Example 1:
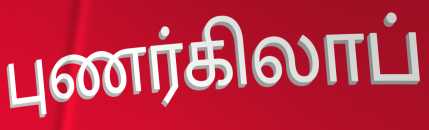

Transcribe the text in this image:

புணர்கிலாப்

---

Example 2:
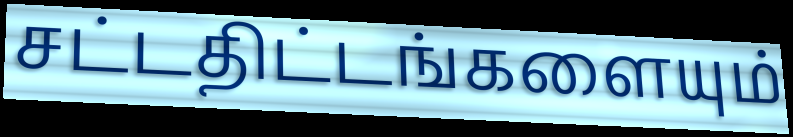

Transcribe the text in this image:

சட்டதிட்டங்களையும்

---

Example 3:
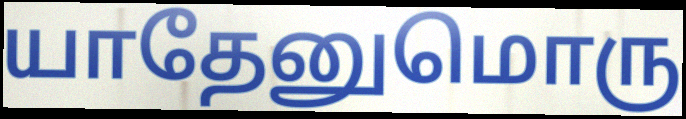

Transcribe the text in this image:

யாதேனுமொரு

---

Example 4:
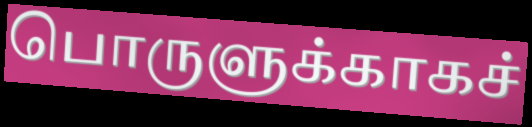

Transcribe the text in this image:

பொருளுக்காகச்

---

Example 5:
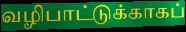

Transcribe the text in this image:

வழிபாட்டுக்காகப்